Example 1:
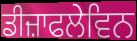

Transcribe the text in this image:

ਡੀਜ਼ਾਫਲੇਵਿਨ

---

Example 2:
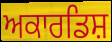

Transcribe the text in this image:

ਅਕਾਰਡਿਸ਼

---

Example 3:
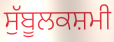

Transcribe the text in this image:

ਸੁੱਬੂਲਕਸ਼ਮੀ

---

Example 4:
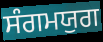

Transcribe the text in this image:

ਸੰਗਮਯੁਗ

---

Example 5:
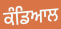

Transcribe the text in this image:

ਕੰਡਿਆਲ